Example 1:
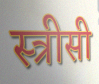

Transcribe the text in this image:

स्त्रीसी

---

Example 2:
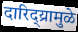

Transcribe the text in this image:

दारिद्य्रामुळे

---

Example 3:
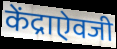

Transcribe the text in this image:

केंद्राऐवजी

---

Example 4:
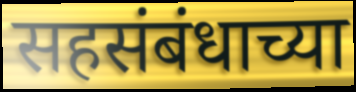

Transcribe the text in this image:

सहसंबंधाच्या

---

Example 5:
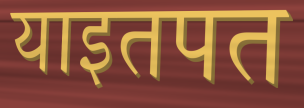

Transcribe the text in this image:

याइतपत